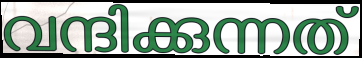
വന്ദിക്കുന്നത്